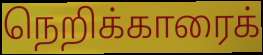
நெறிக்காரைக்